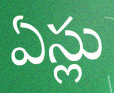
ఏస్లు